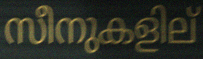
സീനുകളില്